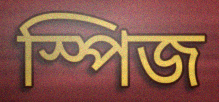
স্পিজ